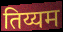
तिय्यम